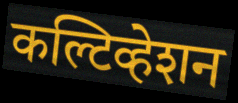
कल्टिव्हेशन